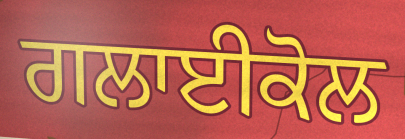
ਗਲਾਈਕੋਲ